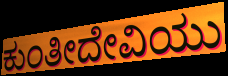
ಕುಂತೀದೇವಿಯು